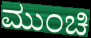
ಮುಂಚಿ